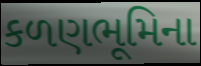
કળણભૂમિના